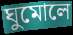
ঘুমোলে